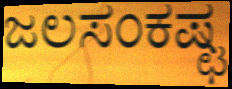
ಜಲಸಂಕಷ್ಟ